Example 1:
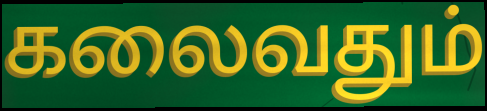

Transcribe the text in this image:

கலைவதும்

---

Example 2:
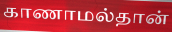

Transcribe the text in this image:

காணாமல்தான்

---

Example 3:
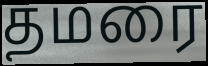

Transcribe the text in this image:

தமரை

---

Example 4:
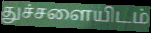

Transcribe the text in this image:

துச்சளையிடம்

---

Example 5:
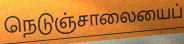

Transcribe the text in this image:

நெடுஞ்சாலையைப்